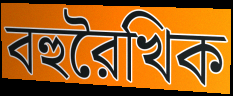
বহুরৈখিক